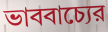
ভাববাচ্যের